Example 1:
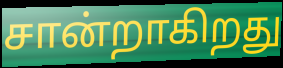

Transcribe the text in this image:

சான்றாகிறது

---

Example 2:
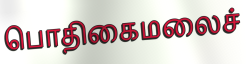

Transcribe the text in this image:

பொதிகைமலைச்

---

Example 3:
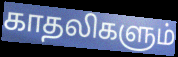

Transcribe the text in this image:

காதலிகளும்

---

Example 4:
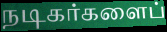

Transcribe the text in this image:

நடிகர்களைப்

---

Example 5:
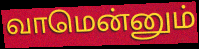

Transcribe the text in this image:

வாமென்னும்